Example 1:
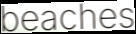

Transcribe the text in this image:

beaches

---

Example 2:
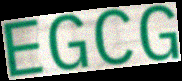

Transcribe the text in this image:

EGCG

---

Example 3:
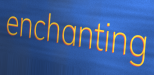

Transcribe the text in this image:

enchanting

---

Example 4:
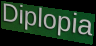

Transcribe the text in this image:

Diplopia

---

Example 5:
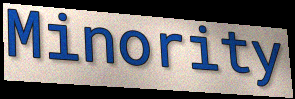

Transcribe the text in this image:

Minority